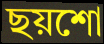
ছয়শো